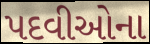
પદવીઓના